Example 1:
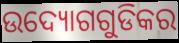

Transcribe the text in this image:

ଉଦ୍ୟୋଗଗୁଡିକର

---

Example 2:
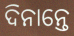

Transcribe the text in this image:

ଦିନାନ୍ତେ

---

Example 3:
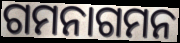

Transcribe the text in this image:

ଗମନାଗମନ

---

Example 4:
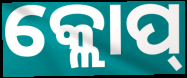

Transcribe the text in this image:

କ୍ଲୋପ୍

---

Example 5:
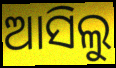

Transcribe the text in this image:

ଆସିଲୁ